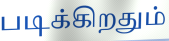
படிக்கிறதும்